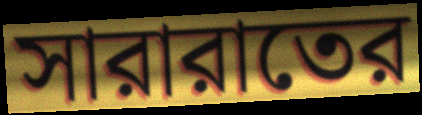
সারারাতের